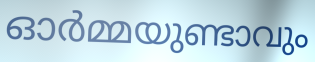
ഓർമ്മയുണ്ടാവും